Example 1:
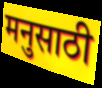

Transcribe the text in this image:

मनुसाठी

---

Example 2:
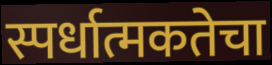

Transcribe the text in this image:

स्पर्धात्मकतेचा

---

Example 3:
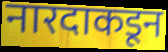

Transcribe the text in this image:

नारदाकडून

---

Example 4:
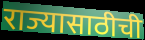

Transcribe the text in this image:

राज्यासाठीची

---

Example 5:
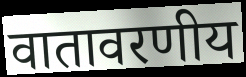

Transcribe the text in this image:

वातावरणीय